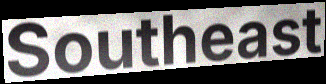
Southeast